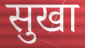
सुखा